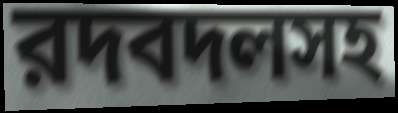
রদবদলসহ